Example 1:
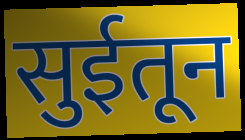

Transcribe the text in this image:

सुईतून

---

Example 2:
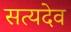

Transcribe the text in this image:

सत्यदेव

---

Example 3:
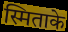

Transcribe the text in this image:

स्मिताके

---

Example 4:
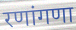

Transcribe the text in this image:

रणांगणा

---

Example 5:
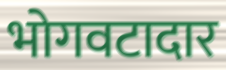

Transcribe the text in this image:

भोगवटादार